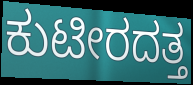
ಕುಟೀರದತ್ತ